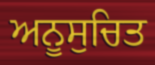
ਅਨੂਸੁਚਿਤ